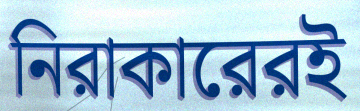
নিরাকারেরই